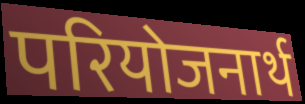
परियोजनार्थ